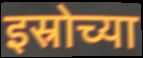
इस्रोच्या